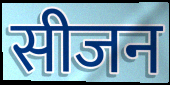
सीजन